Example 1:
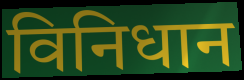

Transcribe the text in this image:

विनिधान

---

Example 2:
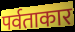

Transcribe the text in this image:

पर्वताकार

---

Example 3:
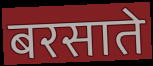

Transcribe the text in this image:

बरसाते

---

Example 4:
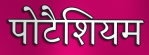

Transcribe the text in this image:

पोटैशियम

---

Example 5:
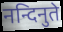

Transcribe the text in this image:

नन्दिनुते